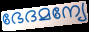
ഭേദമന്യേ